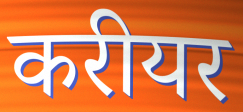
करीयर